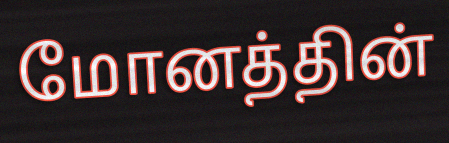
மோனத்தின்